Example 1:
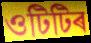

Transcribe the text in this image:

ওটিটিৰ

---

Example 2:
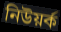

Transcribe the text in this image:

নিউয়ৰ্ক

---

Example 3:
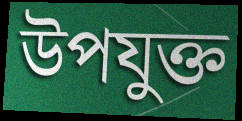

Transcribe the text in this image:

উপযুক্ত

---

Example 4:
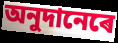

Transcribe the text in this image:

অনুদানেৰে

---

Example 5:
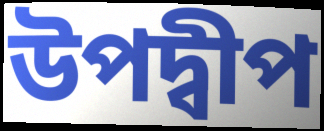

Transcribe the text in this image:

উপদ্বীপ